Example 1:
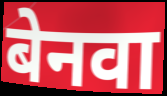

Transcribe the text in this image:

बेनवा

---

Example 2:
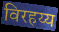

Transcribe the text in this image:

विरहय्य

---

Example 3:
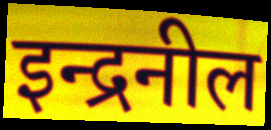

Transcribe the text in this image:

इन्द्रनील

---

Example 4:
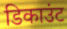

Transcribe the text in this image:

डिकाउंट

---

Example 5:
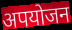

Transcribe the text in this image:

अपयोजन